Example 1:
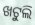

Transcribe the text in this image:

ଖଟୁଲି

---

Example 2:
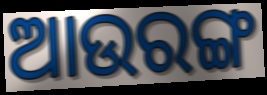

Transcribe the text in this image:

ଆଉରଙ୍ଗ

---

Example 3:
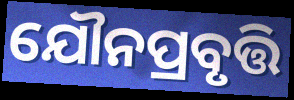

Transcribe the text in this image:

ଯୌନପ୍ରବୃତ୍ତି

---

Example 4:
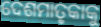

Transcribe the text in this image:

ଦେଶମାତୃକାକୁ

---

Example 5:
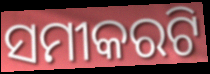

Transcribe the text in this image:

ସମୀକରଟି